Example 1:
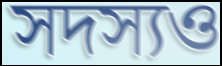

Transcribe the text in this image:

সদস্যও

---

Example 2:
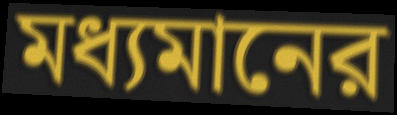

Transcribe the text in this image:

মধ্যমানের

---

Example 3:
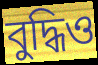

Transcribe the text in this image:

বুদ্ধিও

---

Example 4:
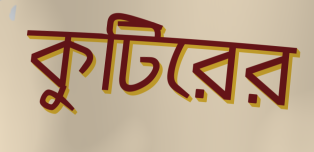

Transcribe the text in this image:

কুটিরের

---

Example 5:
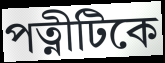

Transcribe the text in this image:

পত্নীটিকে